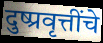
दुष्प्रवृत्तींचे